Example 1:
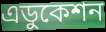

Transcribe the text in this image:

এডুকেশন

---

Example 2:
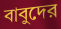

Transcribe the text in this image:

বাবুদের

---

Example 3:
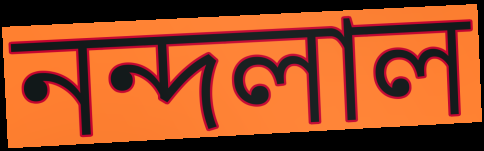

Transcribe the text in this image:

নন্দলাল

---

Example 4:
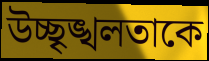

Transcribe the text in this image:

উচ্ছৃঙ্খলতাকে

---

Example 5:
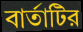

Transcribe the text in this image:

বার্তাটির